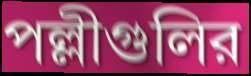
পল্লীগুলির